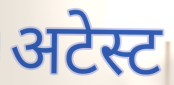
अटेस्ट